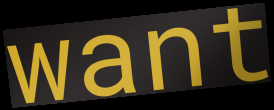
want